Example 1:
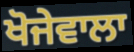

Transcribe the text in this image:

ਖੋਜੇਵਾਲਾ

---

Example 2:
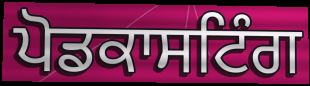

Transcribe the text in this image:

ਪੋਡਕਾਸਟਿੰਗ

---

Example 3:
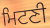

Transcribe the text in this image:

ਮਿਟਣੀ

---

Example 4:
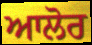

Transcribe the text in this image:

ਆਲੋਰ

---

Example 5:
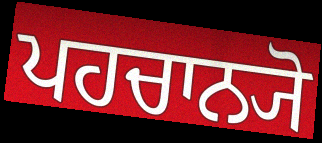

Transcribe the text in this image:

ਪਹਚਾਨ੍ਯੋ